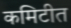
कमिटीत